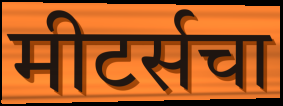
मीटर्सचा